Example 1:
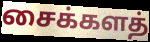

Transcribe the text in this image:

சைக்களத்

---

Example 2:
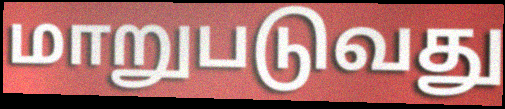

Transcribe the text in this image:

மாறுபடுவது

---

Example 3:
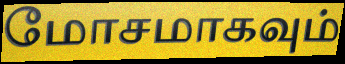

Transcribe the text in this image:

மோசமாகவும்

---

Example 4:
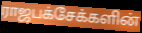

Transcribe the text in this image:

ராஜபக்சேக்களின்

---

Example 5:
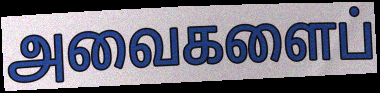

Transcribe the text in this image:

அவைகளைப்